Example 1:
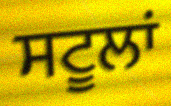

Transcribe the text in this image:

ਸਟੂਲਾਂ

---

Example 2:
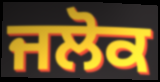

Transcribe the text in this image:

ਜਲੋਕ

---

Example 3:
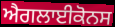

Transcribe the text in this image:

ਐਗਲਾਈਕੋਨਸ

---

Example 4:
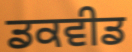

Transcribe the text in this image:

ਡਕਵੀਡ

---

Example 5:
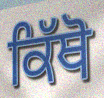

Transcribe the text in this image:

ਕਿੱਥੋ